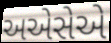
અએસેએ